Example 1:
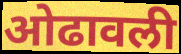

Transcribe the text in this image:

ओढावली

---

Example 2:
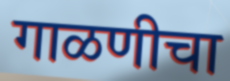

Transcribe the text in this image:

गाळणीचा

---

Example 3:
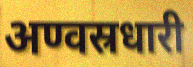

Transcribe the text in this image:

अण्वस्रधारी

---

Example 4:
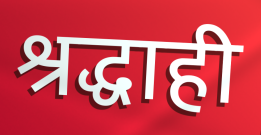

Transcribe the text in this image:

श्रद्धाही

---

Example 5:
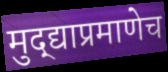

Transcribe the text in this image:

मुद्द्याप्रमाणेच